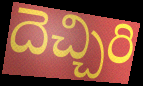
దెచ్చిరి